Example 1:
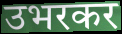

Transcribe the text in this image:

उभरकर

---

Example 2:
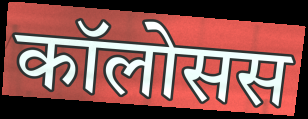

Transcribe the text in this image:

कॉलोसस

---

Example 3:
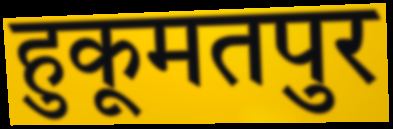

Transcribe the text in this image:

हुकूमतपुर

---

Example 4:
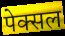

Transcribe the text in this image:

पेक्सल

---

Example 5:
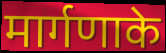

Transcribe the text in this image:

मार्गणाके